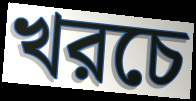
খরচে